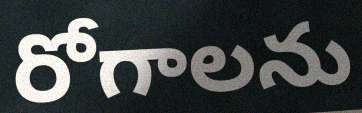
రోగాలను